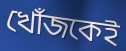
খোঁজকেই